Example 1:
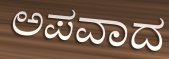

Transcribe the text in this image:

ಅಪವಾದ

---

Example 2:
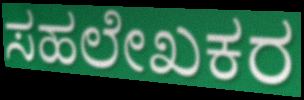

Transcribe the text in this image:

ಸಹಲೇಖಕರ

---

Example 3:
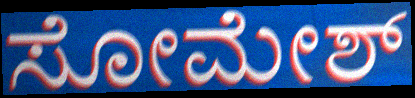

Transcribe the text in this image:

ಸೋಮೇಶ್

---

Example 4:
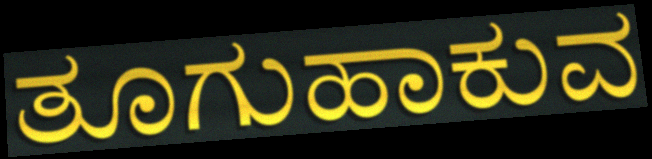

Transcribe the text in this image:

ತೂಗುಹಾಕುವ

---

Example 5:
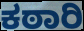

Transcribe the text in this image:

ಕಠಾರಿ